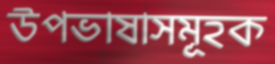
উপভাষাসমূহক